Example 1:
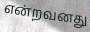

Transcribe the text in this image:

என்றவனது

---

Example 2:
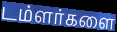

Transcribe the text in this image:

டம்ளர்களை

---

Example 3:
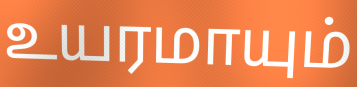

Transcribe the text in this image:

உயரமாயும்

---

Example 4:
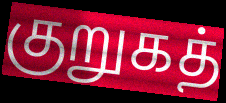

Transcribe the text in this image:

குறுகத்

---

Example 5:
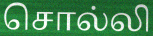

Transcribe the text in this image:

சொல்லி